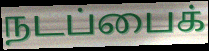
நடப்பைக்